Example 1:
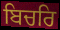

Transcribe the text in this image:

ਬਿਚਰਿ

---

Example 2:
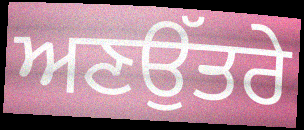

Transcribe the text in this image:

ਅਣਉੱਤਰੇ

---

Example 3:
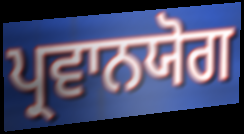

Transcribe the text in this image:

ਪ੍ਰਵਾਨਯੋਗ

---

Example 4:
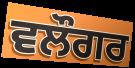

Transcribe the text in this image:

ਵਲੌਗਰ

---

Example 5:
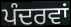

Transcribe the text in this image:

ਪੰਦਰਵਾਂ